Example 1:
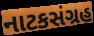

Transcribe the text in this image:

નાટકસંગ્રહ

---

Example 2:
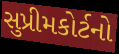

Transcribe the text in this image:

સુપ્રીમકોર્ટનો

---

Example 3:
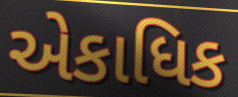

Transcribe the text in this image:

એકાધિક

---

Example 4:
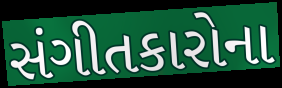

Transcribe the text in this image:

સંગીતકારોના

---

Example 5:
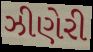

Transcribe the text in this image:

ઝીણેરી